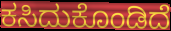
ಕಸಿದುಕೊಂಡಿದೆ